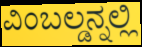
ವಿಂಬಲ್ಡನ್ನಲ್ಲಿ